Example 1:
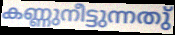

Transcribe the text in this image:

കണ്ണുനീട്ടുന്നതു്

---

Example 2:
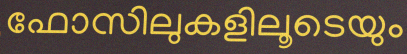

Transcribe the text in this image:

ഫോസിലുകളിലൂടെയും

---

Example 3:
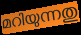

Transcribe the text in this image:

മറിയുന്നതു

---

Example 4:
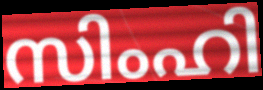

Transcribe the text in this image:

സിംഹി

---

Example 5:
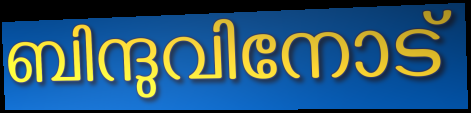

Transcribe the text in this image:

ബിന്ദുവിനോട്